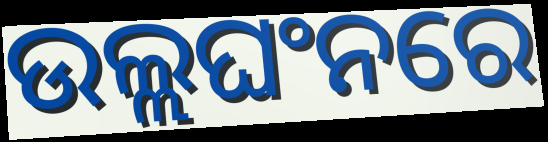
ଉଲ୍ଲଘଂନରେ